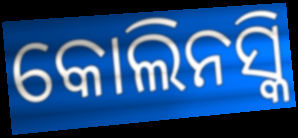
କୋଲିନସ୍କି